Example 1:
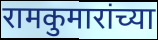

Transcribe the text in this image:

रामकुमारांच्या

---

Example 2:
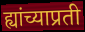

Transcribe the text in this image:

ह्यांच्याप्रती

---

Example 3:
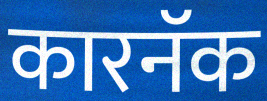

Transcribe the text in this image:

कारनॅक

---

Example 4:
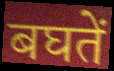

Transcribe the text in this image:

बघतें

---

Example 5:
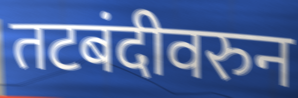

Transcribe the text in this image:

तटबंदीवरुन